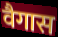
वैगास